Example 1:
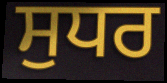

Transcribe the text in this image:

ਸੁਧਰ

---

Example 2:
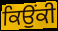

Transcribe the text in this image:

ਕਿਉਂਕੀ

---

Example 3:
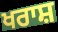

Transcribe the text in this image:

ਖਰਾਸ਼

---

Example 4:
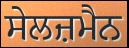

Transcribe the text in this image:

ਸੇਲਜ਼ਮੈਨ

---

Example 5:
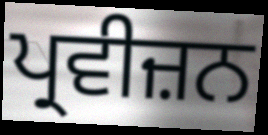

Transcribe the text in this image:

ਪ੍ਰਵੀਜ਼ਨ